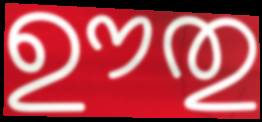
ഊതു